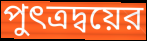
পুৎত্রদ্বয়ের